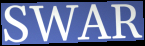
SWAR